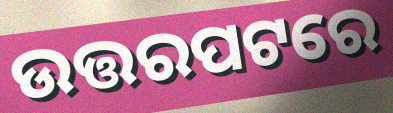
ଉତ୍ତରପଟରେ